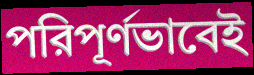
পরিপূর্ণভাবেই